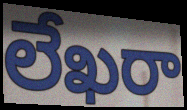
లేఖరా